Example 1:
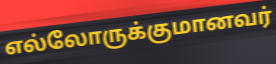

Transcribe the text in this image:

எல்லோருக்குமானவர்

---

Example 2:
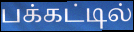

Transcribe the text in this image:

பக்கட்டில்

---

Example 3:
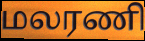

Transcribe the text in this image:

மலரணி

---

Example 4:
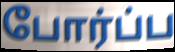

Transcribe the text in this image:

போர்ப்ப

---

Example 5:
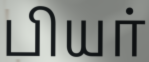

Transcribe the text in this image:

பியர்